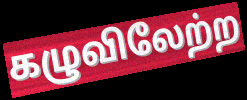
கழுவிலேற்ற